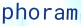
phoram